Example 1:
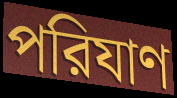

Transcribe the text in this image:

পরিযাণ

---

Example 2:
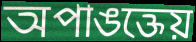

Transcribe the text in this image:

অপাঙক্তেয়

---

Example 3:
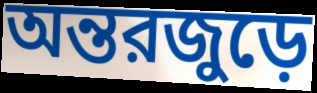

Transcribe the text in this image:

অন্তরজুড়ে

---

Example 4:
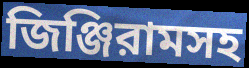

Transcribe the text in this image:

জিঞ্জিরামসহ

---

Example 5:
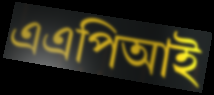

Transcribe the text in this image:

এএপিআই